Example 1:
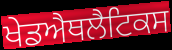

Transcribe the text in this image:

ਖੇਡਐਥਲੈਟਿਕਸ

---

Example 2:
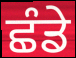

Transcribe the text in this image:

ਛੰਡੇ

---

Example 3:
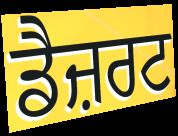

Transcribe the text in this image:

ਡੈਜ਼ਰਟ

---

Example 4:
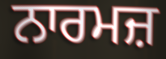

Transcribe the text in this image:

ਨਾਰਮਜ਼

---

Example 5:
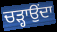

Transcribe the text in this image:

ਚੜ੍ਹਾਉਂਦਾ